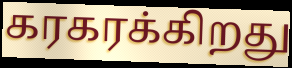
கரகரக்கிறது